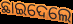
ଛାଇଦେଲେ